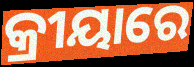
କ୍ରୀୟାରେ